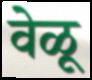
वेळू